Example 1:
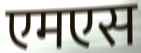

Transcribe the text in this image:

एमएस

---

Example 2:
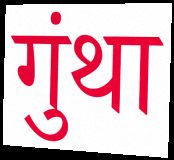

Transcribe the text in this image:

गुंथा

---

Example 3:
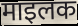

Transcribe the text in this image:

माइलक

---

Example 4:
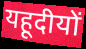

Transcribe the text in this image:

यहूदीयों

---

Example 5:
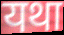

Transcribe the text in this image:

यथा